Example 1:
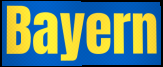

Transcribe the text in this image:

Bayern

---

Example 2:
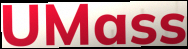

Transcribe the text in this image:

UMass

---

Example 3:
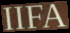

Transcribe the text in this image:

IIFA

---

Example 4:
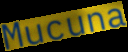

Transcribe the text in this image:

Mucuna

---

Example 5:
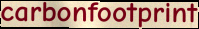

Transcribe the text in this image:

carbonfootprint